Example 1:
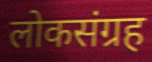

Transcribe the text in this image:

लोकसंग्रह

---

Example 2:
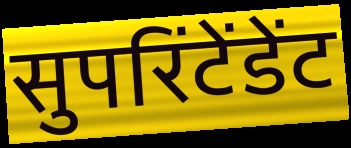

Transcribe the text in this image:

सुपरिंटेंडेंट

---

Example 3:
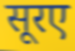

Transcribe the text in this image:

सूरए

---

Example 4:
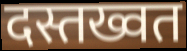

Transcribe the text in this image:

दस्तख्वत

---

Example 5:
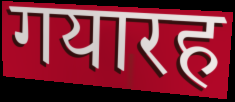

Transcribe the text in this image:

गयारह